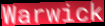
Warwick